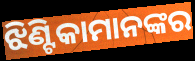
ଝିଣ୍ଟିକାମାନଙ୍କର